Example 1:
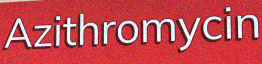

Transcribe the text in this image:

Azithromycin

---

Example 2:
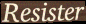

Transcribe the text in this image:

Resister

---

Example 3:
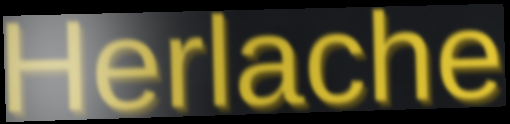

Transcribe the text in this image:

Herlache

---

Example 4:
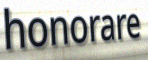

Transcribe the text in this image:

honorare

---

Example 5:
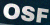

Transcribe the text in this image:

OSF